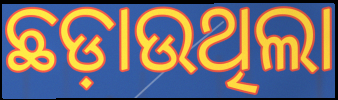
ଛଡ଼ାଉଥିଲା